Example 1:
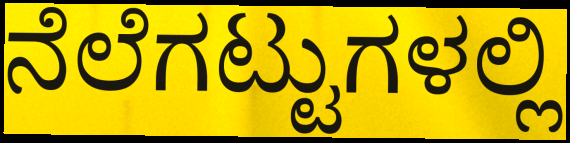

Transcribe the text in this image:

ನೆಲೆಗಟ್ಟುಗಳಲ್ಲಿ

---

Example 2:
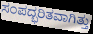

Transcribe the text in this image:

ಸಂಪದ್ಭರಿತವಾಗಿತ್ತು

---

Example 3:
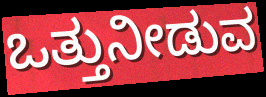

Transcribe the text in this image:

ಒತ್ತುನೀಡುವ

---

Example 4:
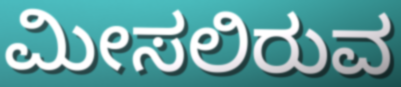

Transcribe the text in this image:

ಮೀಸಲಿರುವ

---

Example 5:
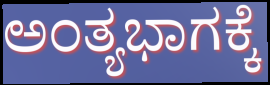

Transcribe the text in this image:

ಅಂತ್ಯಭಾಗಕ್ಕೆ